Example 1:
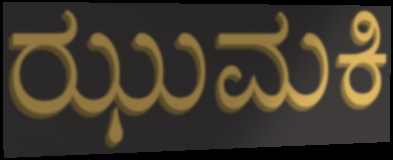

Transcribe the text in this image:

ಝುಮಕಿ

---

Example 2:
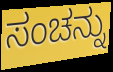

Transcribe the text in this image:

ಸಂಚನ್ನು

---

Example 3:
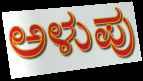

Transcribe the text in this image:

ಅಳುಪು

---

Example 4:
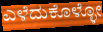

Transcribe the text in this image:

ಎಳೆದುಕೊಳ್ಳೋ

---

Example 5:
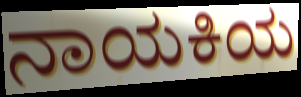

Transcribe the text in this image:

ನಾಯಕಿಯ